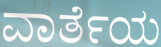
ವಾರ್ತೆಯ